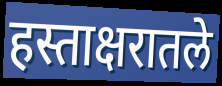
हस्ताक्षरातले